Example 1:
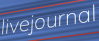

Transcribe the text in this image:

livejournal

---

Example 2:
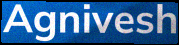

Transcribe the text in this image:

Agnivesh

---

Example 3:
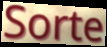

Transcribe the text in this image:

Sorte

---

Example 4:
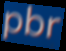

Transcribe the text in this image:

pbr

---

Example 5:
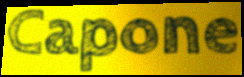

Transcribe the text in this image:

Capone